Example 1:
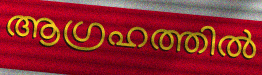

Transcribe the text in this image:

ആഗ്രഹത്തിൽ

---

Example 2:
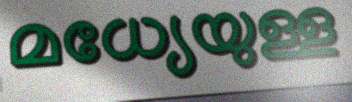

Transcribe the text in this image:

മധ്യേയുള്ള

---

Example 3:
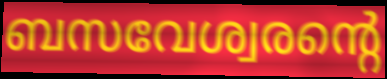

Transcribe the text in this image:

ബസവേശ്വരന്റെ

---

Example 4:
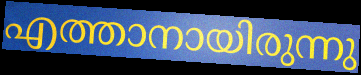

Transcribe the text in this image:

എത്താനായിരുന്നു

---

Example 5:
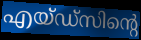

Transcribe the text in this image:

എയ്ഡ്സിന്റെ